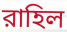
রাহিল